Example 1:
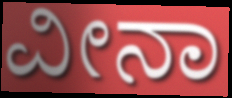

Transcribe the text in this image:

ವೀನಾ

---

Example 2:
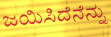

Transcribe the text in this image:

ಜಯಿಸಿದೆನೆನ್ನು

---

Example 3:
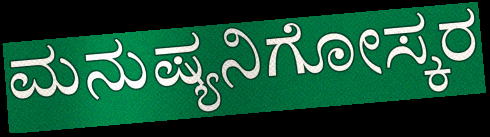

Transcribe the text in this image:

ಮನುಷ್ಯನಿಗೋಸ್ಕರ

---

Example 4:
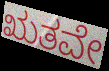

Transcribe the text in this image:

ಋತವೇ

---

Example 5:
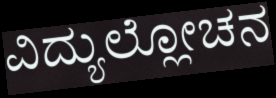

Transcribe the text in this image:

ವಿದ್ಯುಲ್ಲೋಚನ